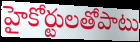
హైకోర్టులతోపాటు